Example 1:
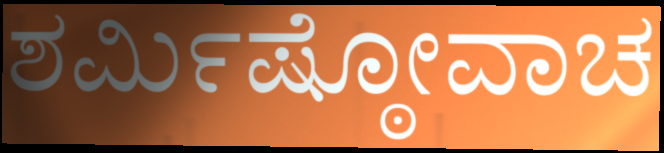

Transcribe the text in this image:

ಶರ್ಮಿಷ್ಠೋವಾಚ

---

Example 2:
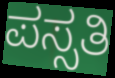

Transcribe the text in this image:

ಪಸ್ಸತಿ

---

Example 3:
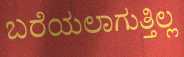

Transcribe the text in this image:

ಬರೆಯಲಾಗುತ್ತಿಲ್ಲ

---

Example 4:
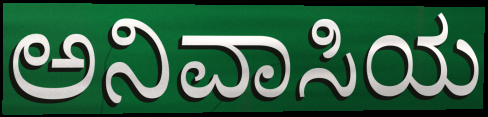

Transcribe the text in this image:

ಅನಿವಾಸಿಯ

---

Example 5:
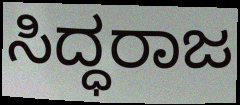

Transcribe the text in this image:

ಸಿದ್ಧರಾಜ